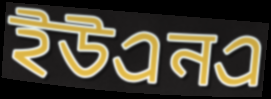
ইউএনএ